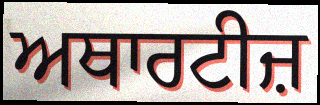
ਅਥਾਰਟੀਜ਼